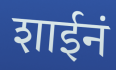
शाईनं